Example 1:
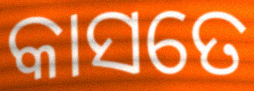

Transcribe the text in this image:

କାସତେ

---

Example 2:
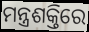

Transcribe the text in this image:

ମନ୍ତ୍ରଶକ୍ତିରେ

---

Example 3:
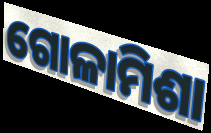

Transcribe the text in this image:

ଗୋଳାମିଶା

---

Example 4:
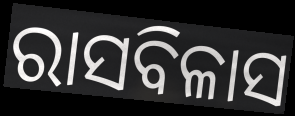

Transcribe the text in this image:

ରାସବିଳାସ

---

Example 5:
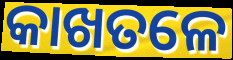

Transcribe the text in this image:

କାଖତଳେ